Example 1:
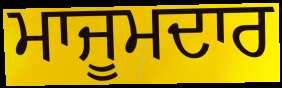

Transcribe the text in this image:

ਮਾਜੂਮਦਾਰ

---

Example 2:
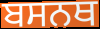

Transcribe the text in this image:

ਬਸਨਥ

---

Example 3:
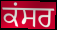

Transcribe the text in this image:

ਕਂਸਰ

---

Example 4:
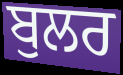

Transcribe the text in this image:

ਬੁਲਰ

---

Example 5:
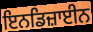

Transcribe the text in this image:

ਇਨਡਿਜ਼ਾਈਨ